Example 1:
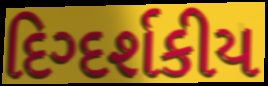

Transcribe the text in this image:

દિગ્દર્શકીય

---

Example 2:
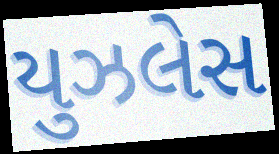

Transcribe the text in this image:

યુઝલેસ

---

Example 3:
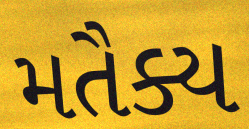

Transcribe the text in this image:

મતૈક્ય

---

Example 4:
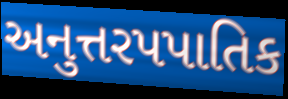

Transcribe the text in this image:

અનુત્તરપપાતિક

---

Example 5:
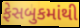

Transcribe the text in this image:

ફેસબુકમાંથી